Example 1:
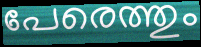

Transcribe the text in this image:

പേരെത്തും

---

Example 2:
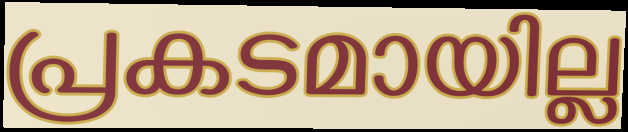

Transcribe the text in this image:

പ്രകടമായില്ല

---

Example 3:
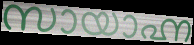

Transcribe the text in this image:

സായാഹ്ന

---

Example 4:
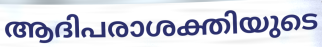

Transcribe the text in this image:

ആദിപരാശക്തിയുടെ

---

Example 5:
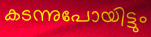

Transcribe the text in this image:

കടന്നുപോയിട്ടും